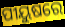
ପୀୟୁଷରେ